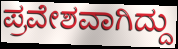
ಪ್ರವೇಶವಾಗಿದ್ದು